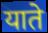
याते